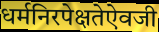
धर्मनिरपेक्षतेऐवजी